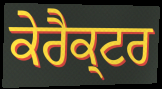
ਕੇਰੈਕ੍ਟਰ